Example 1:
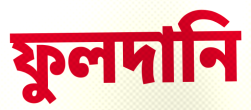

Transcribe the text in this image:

ফুলদানি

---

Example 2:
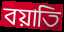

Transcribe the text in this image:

বয়াতি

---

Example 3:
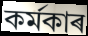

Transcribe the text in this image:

কৰ্মকাৰ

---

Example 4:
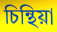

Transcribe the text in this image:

চিন্থিয়া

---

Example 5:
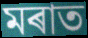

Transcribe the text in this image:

মৰাত